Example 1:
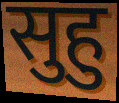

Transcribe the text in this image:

सुहु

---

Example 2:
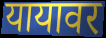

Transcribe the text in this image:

यायावर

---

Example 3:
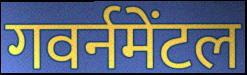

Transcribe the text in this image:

गवर्नमेंटल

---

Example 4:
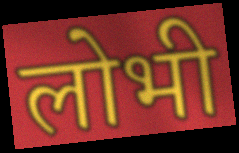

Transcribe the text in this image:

लोभी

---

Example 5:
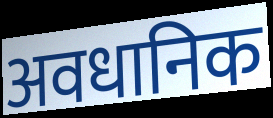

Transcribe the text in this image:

अवधानिक